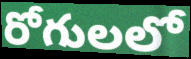
రోగులలో